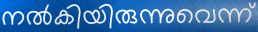
നൽകിയിരുന്നുവെന്ന്